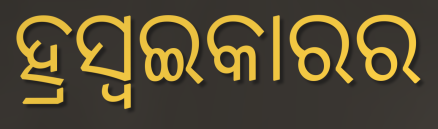
ହ୍ରସ୍ୱଇକାରର